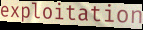
exploitation